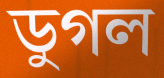
ডুগল